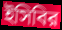
ইসিবির